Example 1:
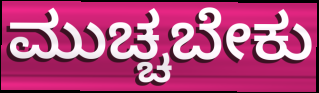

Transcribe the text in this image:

ಮುಚ್ಚಬೇಕು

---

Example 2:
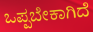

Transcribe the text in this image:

ಒಪ್ಪಬೇಕಾಗಿದೆ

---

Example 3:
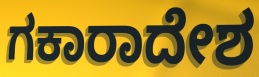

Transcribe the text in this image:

ಗಕಾರಾದೇಶ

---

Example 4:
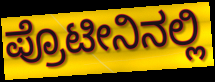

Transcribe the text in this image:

ಪ್ರೊಟೀನಿನಲ್ಲಿ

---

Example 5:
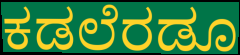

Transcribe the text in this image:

ಕಡಲೆರಡೂ